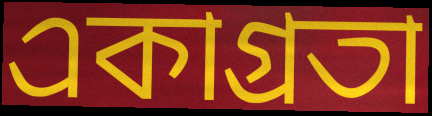
একাগ্রতা